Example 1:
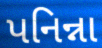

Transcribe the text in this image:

પનિન્ના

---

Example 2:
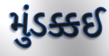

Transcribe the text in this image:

મુંડક્કઈ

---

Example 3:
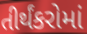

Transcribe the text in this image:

તીર્થંકરોમાં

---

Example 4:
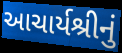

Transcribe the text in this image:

આચાર્યશ્રીનું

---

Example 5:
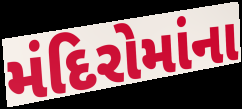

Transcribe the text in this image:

મંદિરોમાંના